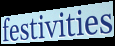
festivities